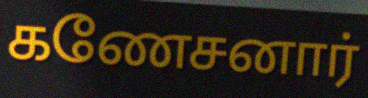
கணேசனார்